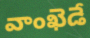
వాంఖెడే